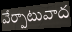
వేర్పాటువాద